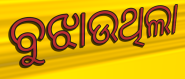
ବୁଝାଉଥିଲା